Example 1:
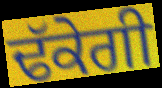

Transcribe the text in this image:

ਢੱਕੇਗੀ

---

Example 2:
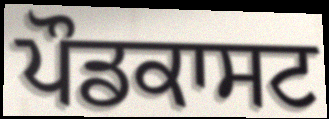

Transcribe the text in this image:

ਪੌਡਕਾਸਟ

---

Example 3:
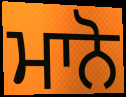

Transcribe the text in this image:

ਮਾਨੋ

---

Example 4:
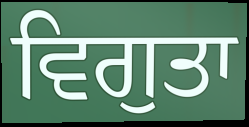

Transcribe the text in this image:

ਵਿਗੁਤਾ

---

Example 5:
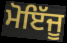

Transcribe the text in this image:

ਮੋਇੱਜੂ